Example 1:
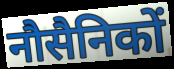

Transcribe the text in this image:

नौसैनिकों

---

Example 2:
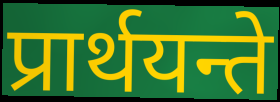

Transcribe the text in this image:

प्रार्थयन्ते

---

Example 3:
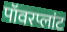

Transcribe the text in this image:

पॉवरप्लांट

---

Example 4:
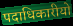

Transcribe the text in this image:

पदाधिकारीयो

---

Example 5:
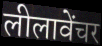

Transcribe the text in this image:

लीलावेंचर